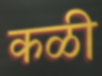
कळी